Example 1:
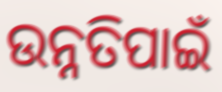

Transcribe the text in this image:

ଉନ୍ନତିପାଇଁ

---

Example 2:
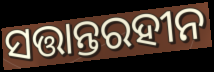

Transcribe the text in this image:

ସତ୍ତାନ୍ତରହୀନ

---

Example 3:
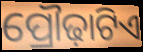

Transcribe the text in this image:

ପ୍ରୌଢ଼ାଟିଏ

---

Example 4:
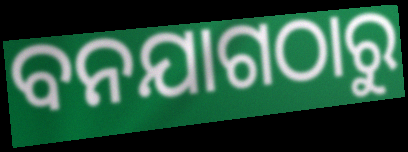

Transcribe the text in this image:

ବନଯାଗଠାରୁ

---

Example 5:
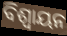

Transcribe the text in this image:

ବିଶ୍ଵାୟନ